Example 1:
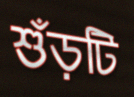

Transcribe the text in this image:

শুঁড়টি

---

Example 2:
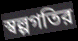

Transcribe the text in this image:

স্বল্পগতির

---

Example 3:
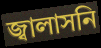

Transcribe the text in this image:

জ্বালাসনি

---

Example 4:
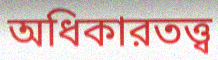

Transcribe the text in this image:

অধিকারতত্ত্ব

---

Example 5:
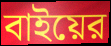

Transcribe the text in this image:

বাইয়ের